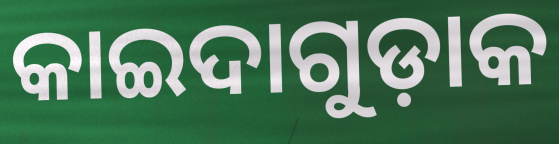
କାଇଦାଗୁଡ଼ାକ